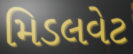
મિડલવેટ